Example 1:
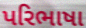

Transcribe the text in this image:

પરિભાષા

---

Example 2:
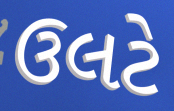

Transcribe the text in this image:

ઉલટે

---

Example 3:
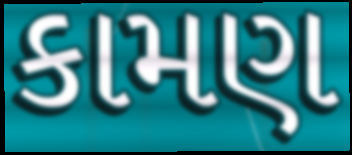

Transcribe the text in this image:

કામણ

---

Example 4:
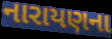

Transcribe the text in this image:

નારાયણના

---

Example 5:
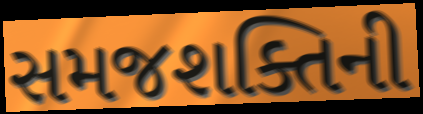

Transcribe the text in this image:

સમજશક્તિની